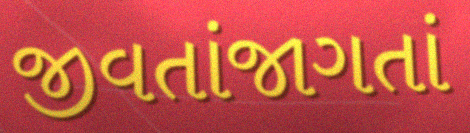
જીવતાંજાગતાં